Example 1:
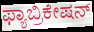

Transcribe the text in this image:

ಫ್ಯಾಬ್ರಿಕೇಷನ್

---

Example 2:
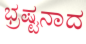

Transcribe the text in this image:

ಭ್ರಷ್ಟನಾದ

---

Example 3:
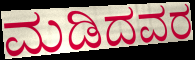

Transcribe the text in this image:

ಮಡಿದವರ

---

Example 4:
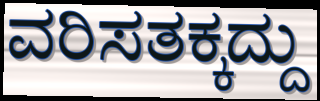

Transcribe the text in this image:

ವರಿಸತಕ್ಕದ್ದು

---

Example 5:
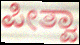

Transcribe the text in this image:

ಪೀತ್ವಾ